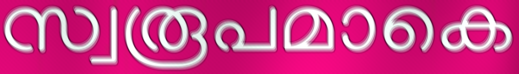
സ്വരൂപമാകെ